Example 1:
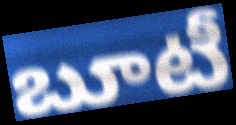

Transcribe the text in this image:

బూటీ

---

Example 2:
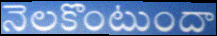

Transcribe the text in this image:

నెలకొంటుందా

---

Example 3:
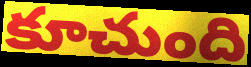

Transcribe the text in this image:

కూచుంది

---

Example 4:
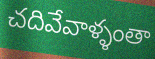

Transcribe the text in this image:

చదివేవాళ్ళంతా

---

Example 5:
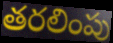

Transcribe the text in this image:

తరలింపు